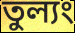
তুল্যং